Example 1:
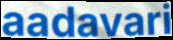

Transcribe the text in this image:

aadavari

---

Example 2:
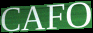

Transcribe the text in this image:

CAFO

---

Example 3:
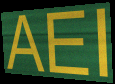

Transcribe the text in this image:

AEI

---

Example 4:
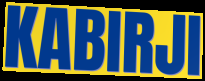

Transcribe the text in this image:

KABIRJI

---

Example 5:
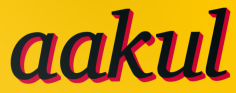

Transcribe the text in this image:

aakul